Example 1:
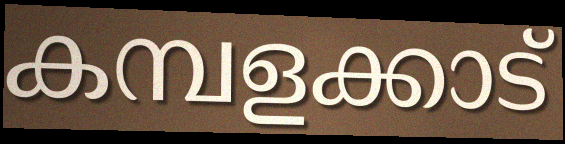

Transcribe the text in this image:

കമ്പളക്കാട്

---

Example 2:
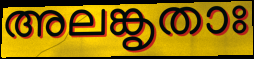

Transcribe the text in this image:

അലങ്കൃതാഃ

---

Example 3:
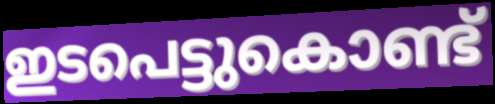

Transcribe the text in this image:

ഇടപെട്ടുകൊണ്ട്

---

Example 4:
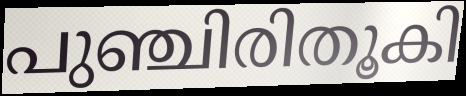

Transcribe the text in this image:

പുഞ്ചിരിതൂകി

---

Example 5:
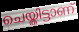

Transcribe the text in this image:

ചെയ്തിട്ടാണ്